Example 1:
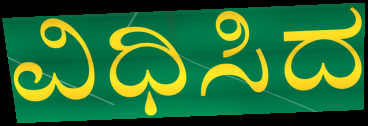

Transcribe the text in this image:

ವಿಧಿಸಿದ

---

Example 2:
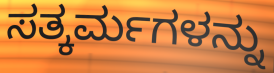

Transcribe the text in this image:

ಸತ್ಕರ್ಮಗಳನ್ನು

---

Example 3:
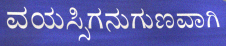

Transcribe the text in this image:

ವಯಸ್ಸಿಗನುಗುಣವಾಗಿ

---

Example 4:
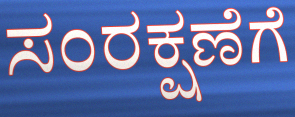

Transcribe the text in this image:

ಸಂರಕ್ಷಣೆಗೆ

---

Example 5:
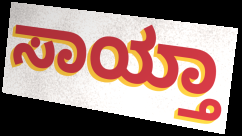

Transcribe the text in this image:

ಸಾಯ್ತಾ